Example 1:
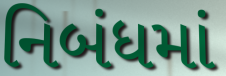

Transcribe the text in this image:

નિબંધમાં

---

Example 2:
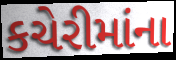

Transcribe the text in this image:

કચેરીમાંના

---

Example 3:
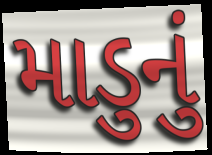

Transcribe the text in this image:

માડુનું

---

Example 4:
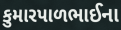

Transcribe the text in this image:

કુમારપાળભાઈના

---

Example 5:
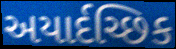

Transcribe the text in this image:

અયાર્દચ્છિક